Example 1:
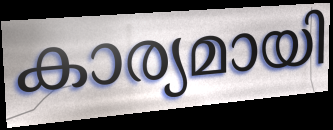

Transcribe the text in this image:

കാര്യമായി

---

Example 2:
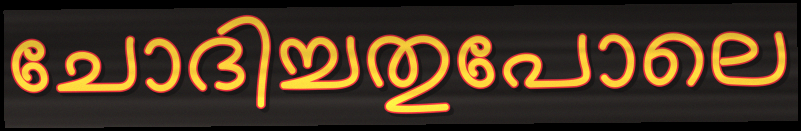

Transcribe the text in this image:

ചോദിച്ചതുപോലെ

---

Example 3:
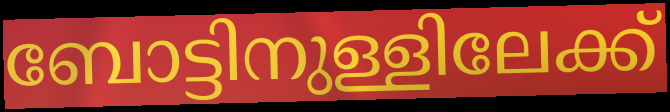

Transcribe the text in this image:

ബോട്ടിനുള്ളിലേക്ക്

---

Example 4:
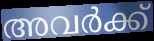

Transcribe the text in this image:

അവർക്ക്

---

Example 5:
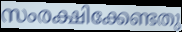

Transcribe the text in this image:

സംരക്ഷിക്കേണ്ടതു